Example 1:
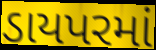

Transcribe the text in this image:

ડાયપરમાં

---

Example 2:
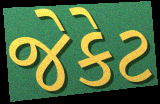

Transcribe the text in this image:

જેકેટ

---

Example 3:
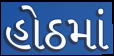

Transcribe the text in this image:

હોઠમાં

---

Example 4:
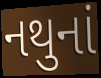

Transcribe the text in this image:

નથુનાં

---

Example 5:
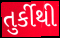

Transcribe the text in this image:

તુર્કીથી